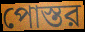
পোস্তর